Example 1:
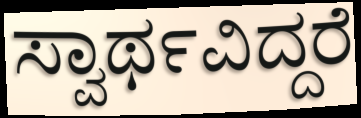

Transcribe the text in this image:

ಸ್ವಾರ್ಥವಿದ್ದರೆ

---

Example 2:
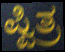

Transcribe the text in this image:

ಪ್ವಿತ್ರ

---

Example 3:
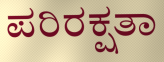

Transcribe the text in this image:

ಪರಿರಕ್ಷತಾ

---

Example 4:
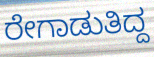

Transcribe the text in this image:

ರೇಗಾಡುತಿದ್ದ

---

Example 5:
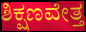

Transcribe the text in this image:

ಶಿಕ್ಷಣವೇತ್ತ